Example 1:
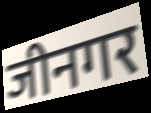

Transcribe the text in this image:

जीनगर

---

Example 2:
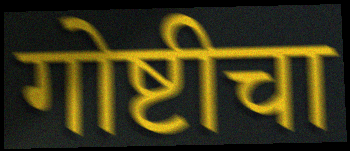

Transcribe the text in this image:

गोष्टीचा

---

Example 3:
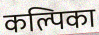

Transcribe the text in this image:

कल्पिका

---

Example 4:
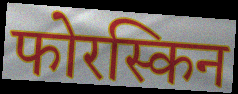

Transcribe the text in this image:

फोरस्किन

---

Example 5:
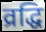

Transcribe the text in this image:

व्रद्धि